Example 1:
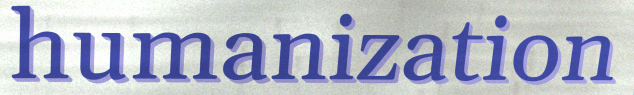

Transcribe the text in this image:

humanization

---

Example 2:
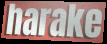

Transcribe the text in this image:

harake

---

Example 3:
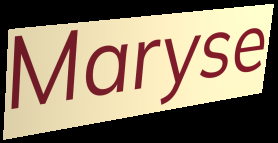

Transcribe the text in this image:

Maryse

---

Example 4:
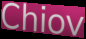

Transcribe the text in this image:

Chiov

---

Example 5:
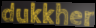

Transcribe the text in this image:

dukkher